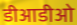
डीआडीओ